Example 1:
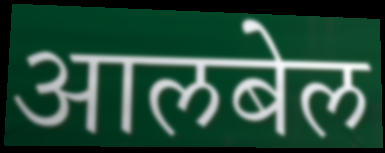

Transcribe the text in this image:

आलबेल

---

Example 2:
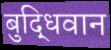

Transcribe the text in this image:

बुद्धिवान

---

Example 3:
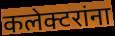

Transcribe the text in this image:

कलेक्टरांना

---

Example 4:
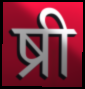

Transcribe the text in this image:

ष्री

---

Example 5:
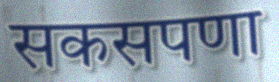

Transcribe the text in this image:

सकसपणा